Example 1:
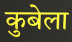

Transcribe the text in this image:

कुबेला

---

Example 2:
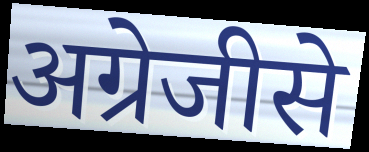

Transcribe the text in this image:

अग्रेजीसे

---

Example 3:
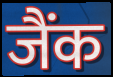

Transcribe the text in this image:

जैंक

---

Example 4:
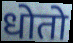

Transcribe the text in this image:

धोतो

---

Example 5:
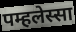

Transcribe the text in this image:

पम्हलेस्सा